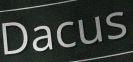
Dacus